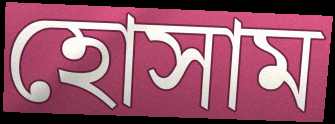
হোসাম